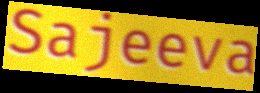
Sajeeva